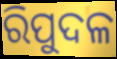
ରିପୁଦଳ